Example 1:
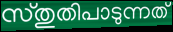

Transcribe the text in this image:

സ്തുതിപാടുന്നത്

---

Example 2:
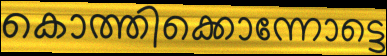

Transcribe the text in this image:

കൊത്തിക്കൊന്നോട്ടെ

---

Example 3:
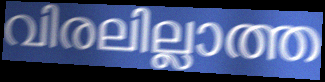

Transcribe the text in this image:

വിരലില്ലാത്ത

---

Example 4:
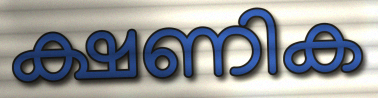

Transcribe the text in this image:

ക്ഷണിക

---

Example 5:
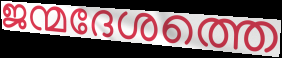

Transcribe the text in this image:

ജന്മദേശത്തെ